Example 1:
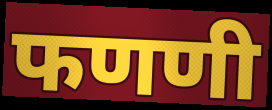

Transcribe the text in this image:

फणणी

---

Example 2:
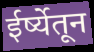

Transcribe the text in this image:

ईर्ष्येतून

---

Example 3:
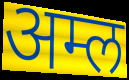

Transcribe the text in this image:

अम्ल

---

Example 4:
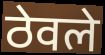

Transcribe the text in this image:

ठेवले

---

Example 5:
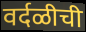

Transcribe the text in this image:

वर्दळीची